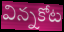
విన్నకోట